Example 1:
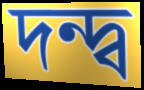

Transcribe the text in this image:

দন্দ্ব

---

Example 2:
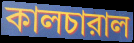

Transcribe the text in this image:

কালচারাল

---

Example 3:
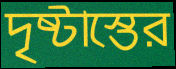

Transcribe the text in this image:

দৃষ্টাস্তের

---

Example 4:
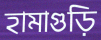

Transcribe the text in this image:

হামাগুড়ি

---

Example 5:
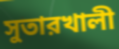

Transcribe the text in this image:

সুতারখালী